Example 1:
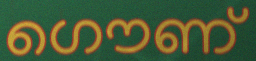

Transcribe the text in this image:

ഗൌണ്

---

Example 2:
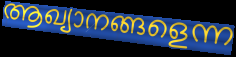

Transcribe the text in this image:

ആഖ്യാനങ്ങളെന്ന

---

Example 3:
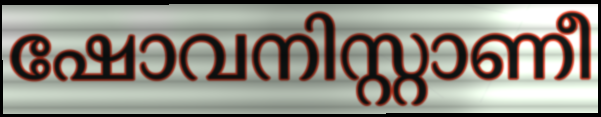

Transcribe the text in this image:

ഷോവനിസ്റ്റാണീ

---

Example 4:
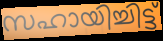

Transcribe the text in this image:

സഹായിച്ചിട്ട്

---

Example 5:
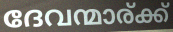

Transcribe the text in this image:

ദേവന്മാര്ക്ക്